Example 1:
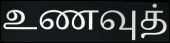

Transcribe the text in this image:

உணவுத்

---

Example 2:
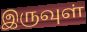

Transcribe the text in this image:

இருவுள்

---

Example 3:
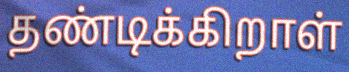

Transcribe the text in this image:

தண்டிக்கிறாள்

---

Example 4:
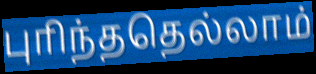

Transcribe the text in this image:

புரிந்ததெல்லாம்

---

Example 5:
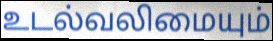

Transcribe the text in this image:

உடல்வலிமையும்